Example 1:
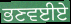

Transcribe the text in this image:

ਭਣਵਈਏ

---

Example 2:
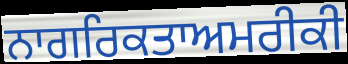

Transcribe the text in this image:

ਨਾਗਰਿਕਤਾਅਮਰੀਕੀ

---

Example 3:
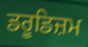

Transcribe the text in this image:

ਡਰੂਡਿਜ਼ਮ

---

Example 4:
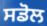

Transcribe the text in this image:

ਸਡੋਲ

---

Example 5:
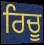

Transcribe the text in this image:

ਰਿਚੂ